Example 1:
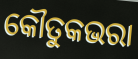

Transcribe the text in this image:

କୌତୁକଭରା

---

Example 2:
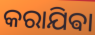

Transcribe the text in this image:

କରାଯିଵା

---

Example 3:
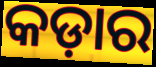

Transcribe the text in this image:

କଡ଼ାର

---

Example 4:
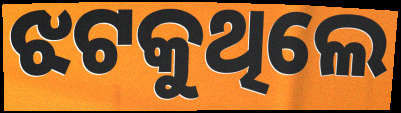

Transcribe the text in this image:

ଝଟକୁଥିଲେ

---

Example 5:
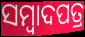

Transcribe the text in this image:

ସମ୍ୱାଦପତ୍ର